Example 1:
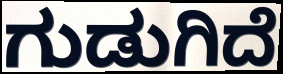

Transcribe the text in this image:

ಗುಡುಗಿದೆ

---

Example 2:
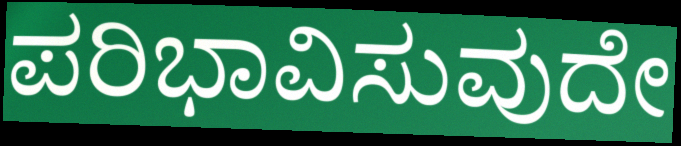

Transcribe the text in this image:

ಪರಿಭಾವಿಸುವುದೇ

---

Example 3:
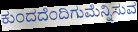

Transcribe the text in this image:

ಕುಂದದೆಂದಿಗುಮೆನ್ನಿಸುವ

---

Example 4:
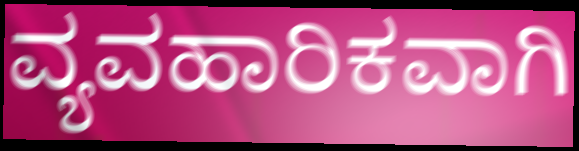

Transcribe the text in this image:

ವ್ಯವಹಾರಿಕವಾಗಿ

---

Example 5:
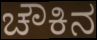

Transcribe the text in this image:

ಚೌಕಿನ